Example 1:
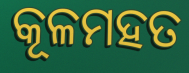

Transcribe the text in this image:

କୂଳମହତ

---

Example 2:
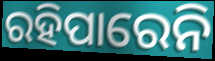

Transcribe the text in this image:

ରହିପାରେନି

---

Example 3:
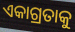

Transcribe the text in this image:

ଏକାଗ୍ରତାକୁ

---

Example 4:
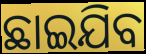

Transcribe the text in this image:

ଛାଇଯିବ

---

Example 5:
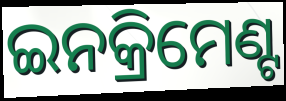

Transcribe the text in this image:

ଇନକ୍ରିମେଣ୍ଟ